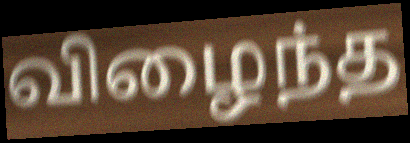
விழைந்த